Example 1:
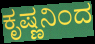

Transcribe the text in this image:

ಕೃಷ್ಣನಿಂದ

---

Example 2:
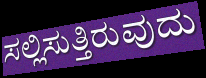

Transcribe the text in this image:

ಸಲ್ಲಿಸುತ್ತಿರುವುದು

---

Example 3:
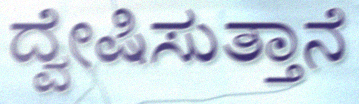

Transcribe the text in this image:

ದ್ವೇಷಿಸುತ್ತಾನೆ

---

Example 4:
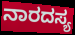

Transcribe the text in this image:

ನಾರದಸ್ಯ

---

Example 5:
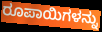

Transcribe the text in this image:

ರೂಪಾಯಿಗಳನ್ನು